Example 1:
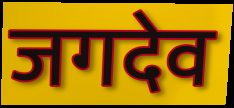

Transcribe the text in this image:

जगदेव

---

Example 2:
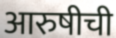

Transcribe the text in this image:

आरुषीची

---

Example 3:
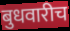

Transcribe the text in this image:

बुधवारीच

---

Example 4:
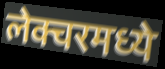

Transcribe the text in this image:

लेक्चरमध्ये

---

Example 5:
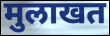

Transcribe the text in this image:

मुलाखत